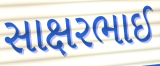
સાક્ષરભાઈ